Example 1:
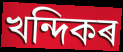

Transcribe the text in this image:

খন্দিকৰ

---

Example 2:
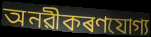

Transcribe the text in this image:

অনৱীকৰণযোগ্য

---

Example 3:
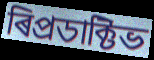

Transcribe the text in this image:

ৰিপ্ৰডাক্টিভ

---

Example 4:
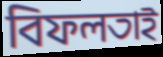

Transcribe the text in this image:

বিফলতাই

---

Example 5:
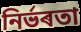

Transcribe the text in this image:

নিৰ্ভৰতা